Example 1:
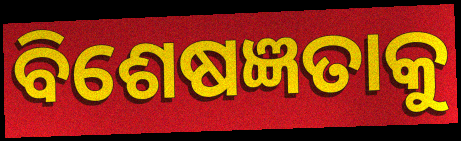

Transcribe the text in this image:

ବିଶେଷଜ୍ଞତାକୁ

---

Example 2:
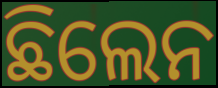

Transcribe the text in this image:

ଛିଲେନ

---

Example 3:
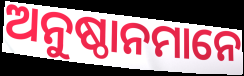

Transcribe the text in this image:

ଅନୁଷ୍ଠାନମାନେ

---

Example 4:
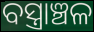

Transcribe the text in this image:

ବସ୍ତ୍ରାଞ୍ଚଳ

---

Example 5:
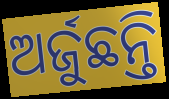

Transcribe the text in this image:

ଅର୍ଜୁଛନ୍ତି